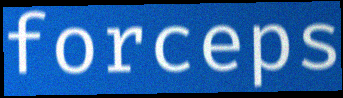
forceps